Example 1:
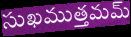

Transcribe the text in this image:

సుఖముత్తమమ్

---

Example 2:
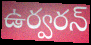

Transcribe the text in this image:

ఉర్వరన్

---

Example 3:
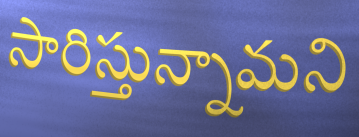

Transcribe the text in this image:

సారిస్తున్నామని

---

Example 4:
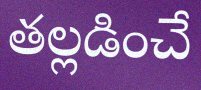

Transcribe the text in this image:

తల్లడించే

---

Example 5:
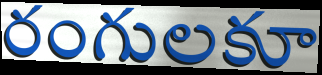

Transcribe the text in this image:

రంగులకూ